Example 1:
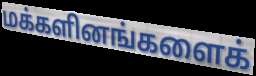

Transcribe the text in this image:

மக்களினங்களைக்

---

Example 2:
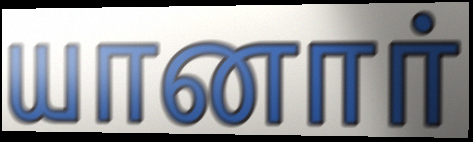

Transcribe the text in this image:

யானார்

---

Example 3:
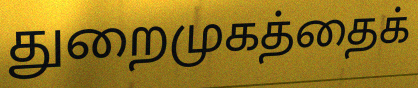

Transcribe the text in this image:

துறைமுகத்தைக்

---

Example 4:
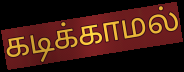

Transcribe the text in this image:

கடிக்காமல்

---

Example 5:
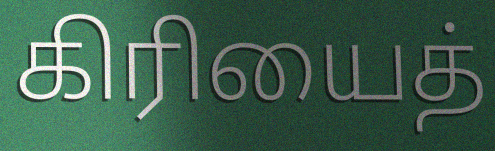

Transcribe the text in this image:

கிரியைத்